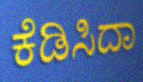
ಕೆಡಿಸಿದಾ